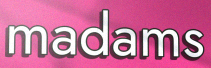
madams